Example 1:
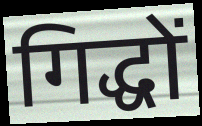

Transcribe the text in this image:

गिद्धों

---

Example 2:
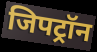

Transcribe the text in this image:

जिपट्रॉन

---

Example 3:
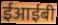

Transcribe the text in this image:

ईआईबी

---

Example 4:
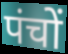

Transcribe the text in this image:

पंचों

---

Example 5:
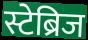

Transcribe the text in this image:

स्टेब्रिज